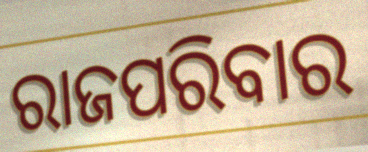
ରାଜପରିବାର